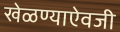
खेळण्याऐवजी